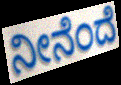
ನೀನೆಂದೆ